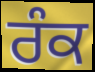
ਰੰਕ